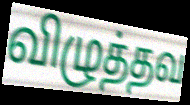
விழுத்தவ